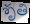
శృతి